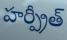
హర్ప్రీత్